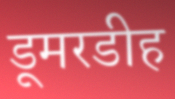
डूमरडीह